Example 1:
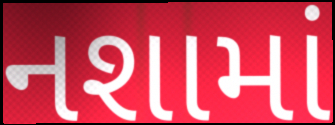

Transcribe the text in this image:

નશામાં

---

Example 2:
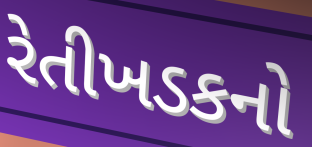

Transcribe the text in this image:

રેતીખડકનો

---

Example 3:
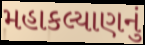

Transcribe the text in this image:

મહાકલ્યાણનું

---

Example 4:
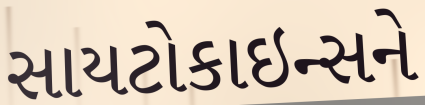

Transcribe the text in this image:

સાયટોકાઇન્સને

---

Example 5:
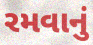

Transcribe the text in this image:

રમવાનું